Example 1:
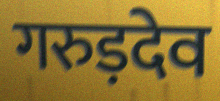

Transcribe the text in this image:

गरुड़देव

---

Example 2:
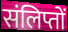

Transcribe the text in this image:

संलिप्तों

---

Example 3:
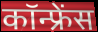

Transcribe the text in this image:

कॉन्फ्रेंस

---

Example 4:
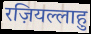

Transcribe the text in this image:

रज़ियल्लाहु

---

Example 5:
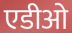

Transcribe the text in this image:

एडीओ